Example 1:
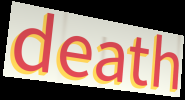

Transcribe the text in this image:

death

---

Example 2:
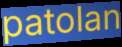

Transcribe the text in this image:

patolan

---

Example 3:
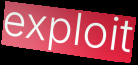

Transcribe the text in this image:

exploit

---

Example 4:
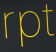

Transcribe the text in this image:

rpt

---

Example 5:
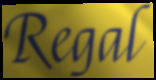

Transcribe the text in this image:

Regal